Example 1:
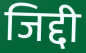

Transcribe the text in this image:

जिद्दी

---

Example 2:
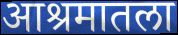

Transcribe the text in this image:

आश्रमातला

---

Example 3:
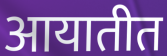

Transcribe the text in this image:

आयातीत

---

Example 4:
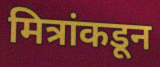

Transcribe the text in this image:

मित्रांकडून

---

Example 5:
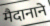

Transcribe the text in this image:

मैदानाने